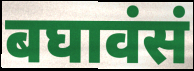
बघावंसं